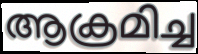
ആക്രമിച്ച